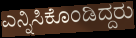
ಎನ್ನಿಸಿಕೊಂಡಿದ್ದರು